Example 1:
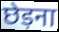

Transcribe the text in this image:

छेड़ना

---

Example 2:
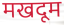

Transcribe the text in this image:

मखदूम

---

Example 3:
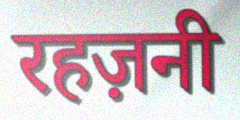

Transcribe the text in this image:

रहज़नी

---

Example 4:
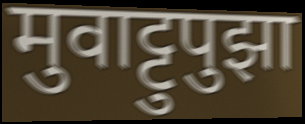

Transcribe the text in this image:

मुवाट्टुपुझा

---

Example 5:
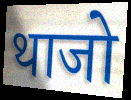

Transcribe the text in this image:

थाजो